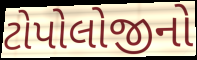
ટોપોલોજીનો